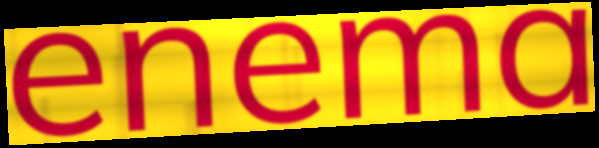
enema